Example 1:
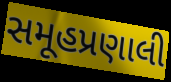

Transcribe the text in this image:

સમૂહપ્રણાલી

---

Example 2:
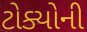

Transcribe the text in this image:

ટોક્યોની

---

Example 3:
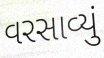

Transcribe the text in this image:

વરસાવ્યું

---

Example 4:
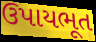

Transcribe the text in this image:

ઉપાયભૂત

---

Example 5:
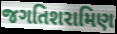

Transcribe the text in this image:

જગતિશરામિણ